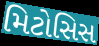
મિટોસિસ